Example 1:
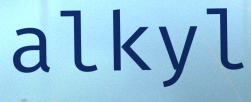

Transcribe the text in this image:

alkyl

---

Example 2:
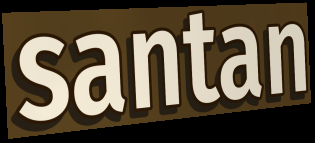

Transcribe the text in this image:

santan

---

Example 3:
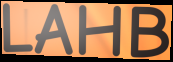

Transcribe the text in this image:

LAHB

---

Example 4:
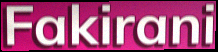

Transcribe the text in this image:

Fakirani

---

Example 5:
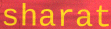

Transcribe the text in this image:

sharat